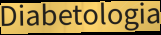
Diabetologia